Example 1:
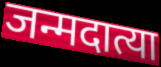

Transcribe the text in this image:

जन्मदात्या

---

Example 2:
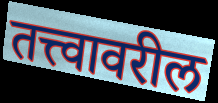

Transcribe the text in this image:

तत्त्वावरील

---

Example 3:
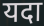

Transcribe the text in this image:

यदा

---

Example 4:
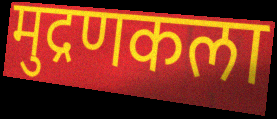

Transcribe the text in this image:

मुद्रणकला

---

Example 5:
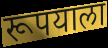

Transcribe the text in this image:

रूपयाला